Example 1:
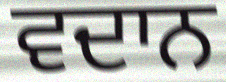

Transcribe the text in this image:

ਵਦਾਨ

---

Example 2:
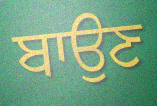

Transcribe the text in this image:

ਬਾਉਣ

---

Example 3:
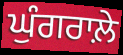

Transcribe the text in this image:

ਘੁੰਗਰਾਲ਼ੇ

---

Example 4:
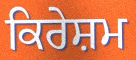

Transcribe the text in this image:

ਕਿਰੇਸ਼ਮ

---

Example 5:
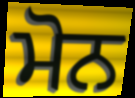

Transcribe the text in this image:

ਮੋਨ